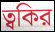
ত্বকির